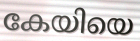
കേയിയെ